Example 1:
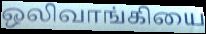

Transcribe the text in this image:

ஒலிவாங்கியை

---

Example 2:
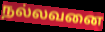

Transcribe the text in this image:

நல்லவனை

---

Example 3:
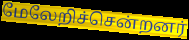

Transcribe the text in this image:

மேலேறிச்சென்றனர்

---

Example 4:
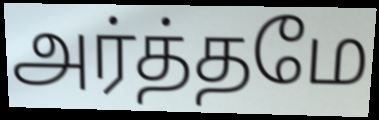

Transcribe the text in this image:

அர்த்தமே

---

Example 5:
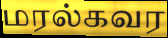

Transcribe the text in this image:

மரல்கவர